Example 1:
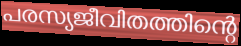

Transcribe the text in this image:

പരസ്യജീവിതത്തിന്റെ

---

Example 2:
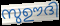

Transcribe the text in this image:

സുഊദി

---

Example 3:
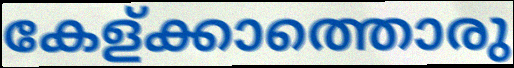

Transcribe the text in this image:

കേള്ക്കാത്തൊരു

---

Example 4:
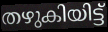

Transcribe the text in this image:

തഴുകിയിട്ട്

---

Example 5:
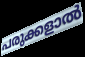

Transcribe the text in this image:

പരുക്കളാൽ